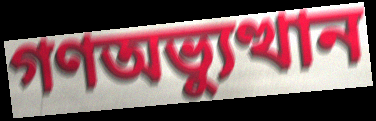
গণঅভ্যুত্থান